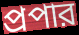
প্রপার